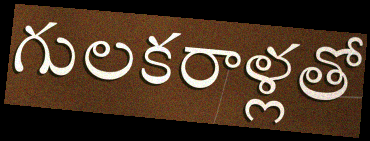
గులకరాళ్లతో